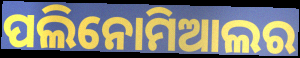
ପଲିନୋମିଆଲର